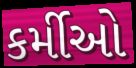
કર્મીઓ